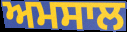
ਅਮਸਾਲ